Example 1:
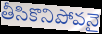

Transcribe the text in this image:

తీసికొనిపోవనై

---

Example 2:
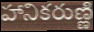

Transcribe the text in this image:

హానికరుణ్ణి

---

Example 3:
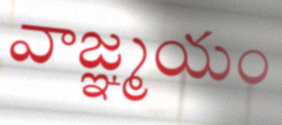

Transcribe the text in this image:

వాజ్ఞ్మయం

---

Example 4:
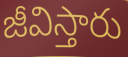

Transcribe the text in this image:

జీవిస్తారు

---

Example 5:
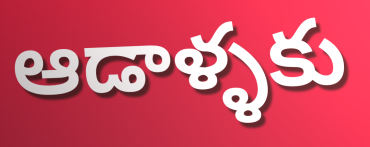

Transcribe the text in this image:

ఆడాళ్ళకు